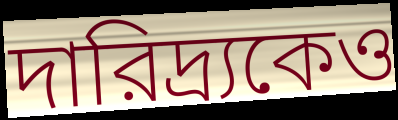
দারিদ্র্যকেও